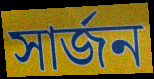
সার্জন